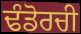
ਢੰਡੋਰਚੀ